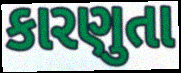
કારણુતા